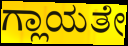
ಗ್ಲಾಯತೇ